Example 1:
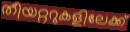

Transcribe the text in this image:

തീയറ്ററുകളിലേക്ക്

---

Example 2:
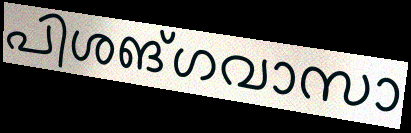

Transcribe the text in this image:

പിശങ്ഗവാസാ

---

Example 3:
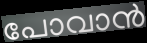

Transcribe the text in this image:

പോവാൻ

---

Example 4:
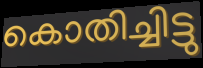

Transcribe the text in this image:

കൊതിച്ചിട്ടു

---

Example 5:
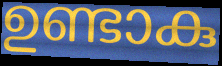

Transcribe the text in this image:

ഉണ്ടാകു